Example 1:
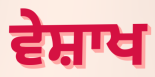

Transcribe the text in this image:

ਵੇਸ਼ਾਖ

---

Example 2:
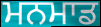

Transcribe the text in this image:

ਮਨਮਾਡ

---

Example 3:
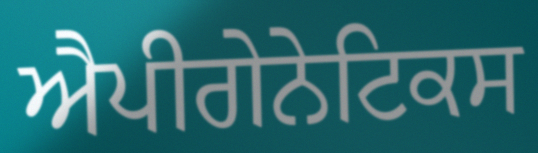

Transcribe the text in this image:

ਐਪੀਗੇਨੇਟਿਕਸ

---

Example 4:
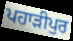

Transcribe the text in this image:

ਪਹਾੜੀਪੁਰ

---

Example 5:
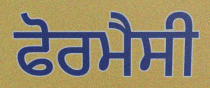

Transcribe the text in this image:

ਫੋਰਮੈਸੀ